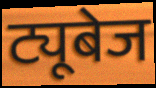
ट्यूबेज